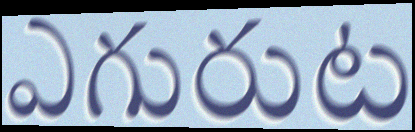
ఎగురుట